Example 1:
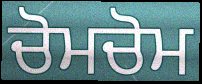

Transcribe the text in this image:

ਚੋਮਚੋਮ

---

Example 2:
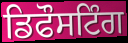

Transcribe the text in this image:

ਡਿਫੌਸਟਿੰਗ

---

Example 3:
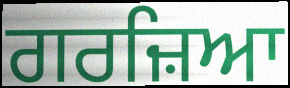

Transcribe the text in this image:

ਗਰਜ਼ਿਆ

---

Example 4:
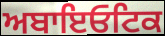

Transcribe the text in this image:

ਅਬਾਇਓਟਿਕ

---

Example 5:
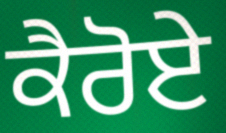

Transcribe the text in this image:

ਕੈਰੋਏ